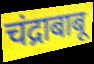
चंद्राबाबू